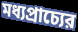
মধ্যপ্রাচ্যের